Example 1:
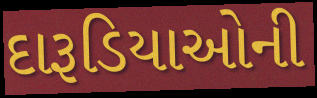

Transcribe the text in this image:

દારૂડિયાઓની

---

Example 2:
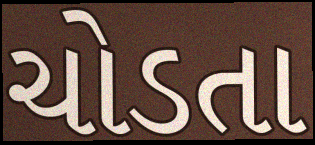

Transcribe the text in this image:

ચોડતા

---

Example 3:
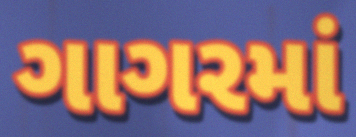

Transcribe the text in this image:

ગાગરમાં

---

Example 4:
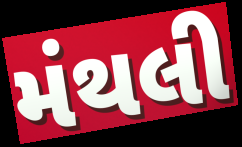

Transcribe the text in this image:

મંથલી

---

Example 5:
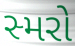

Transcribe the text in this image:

સ્મરો